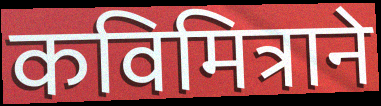
कविमित्राने